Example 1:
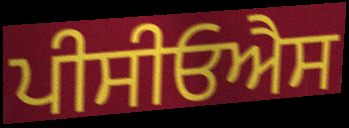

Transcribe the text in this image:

ਪੀਸੀਓਐਸ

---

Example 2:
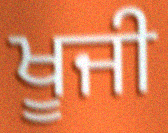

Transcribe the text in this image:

ਖੂਜੀ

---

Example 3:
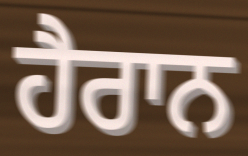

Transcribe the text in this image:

ਹੈਰਾਨ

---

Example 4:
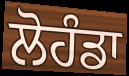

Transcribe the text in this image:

ਲੋਹੰਡਾ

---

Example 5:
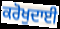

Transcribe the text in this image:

ਕਰੋਖੁਦਾਈ